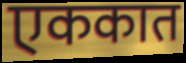
एककात